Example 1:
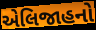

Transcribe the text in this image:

એલિજાહનો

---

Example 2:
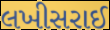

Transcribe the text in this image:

લખીસરાઈ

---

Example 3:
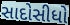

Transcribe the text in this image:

સાદોસીધો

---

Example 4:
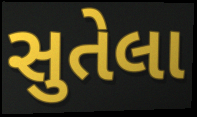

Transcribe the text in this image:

સુતેલા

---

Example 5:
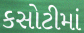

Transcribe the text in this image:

કસોટીમાં